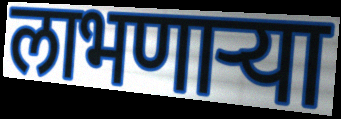
लाभणाऱ्या